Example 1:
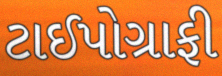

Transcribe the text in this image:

ટાઈપોગ્રાફી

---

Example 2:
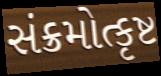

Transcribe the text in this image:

સંક્રમોત્કૃષ્ટ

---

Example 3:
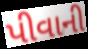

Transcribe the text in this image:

પીવાની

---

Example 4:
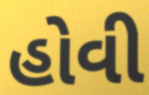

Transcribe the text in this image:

હોવી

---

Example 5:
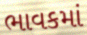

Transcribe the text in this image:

ભાવકમાં